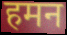
हमन